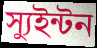
স্যুইন্টন